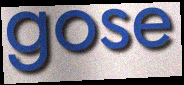
gose